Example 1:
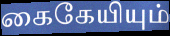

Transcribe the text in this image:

கைகேயியும்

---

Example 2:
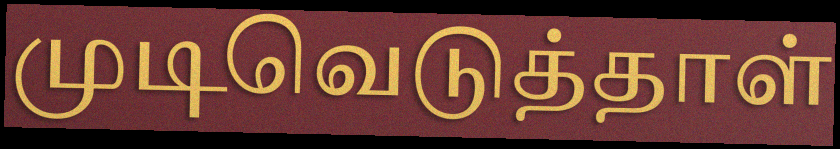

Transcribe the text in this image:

முடிவெடுத்தாள்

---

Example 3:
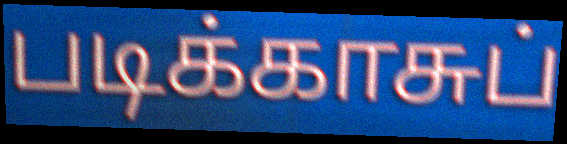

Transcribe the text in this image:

படிக்காசுப்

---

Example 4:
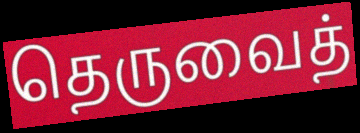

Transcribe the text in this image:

தெருவைத்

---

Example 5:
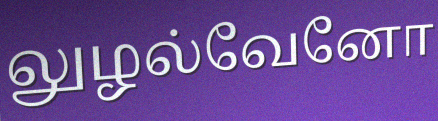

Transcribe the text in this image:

லுழல்வேனோ